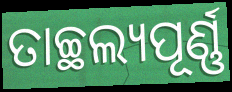
ତାଚ୍ଛଲ୍ୟପୂର୍ଣ୍ଣ